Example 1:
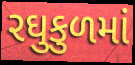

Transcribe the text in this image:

રઘુકુળમાં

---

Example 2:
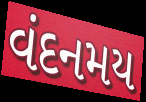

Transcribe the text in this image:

વંદનમય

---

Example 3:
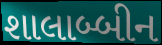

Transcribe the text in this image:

શાલાબ્બીન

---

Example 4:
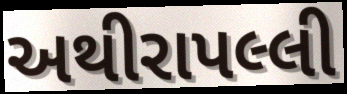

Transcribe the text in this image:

અથીરાપલ્લી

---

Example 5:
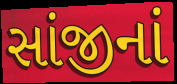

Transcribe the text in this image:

સાંજીનાં